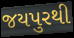
જયપુરથી